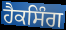
ਹੈਕਸਿੰਗ